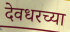
देवधरच्या